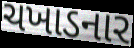
ચખાડનાર